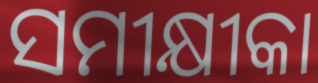
ସମୀକ୍ଷୀକା